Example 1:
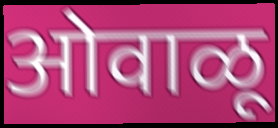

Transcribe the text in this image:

ओवाळू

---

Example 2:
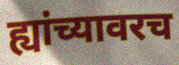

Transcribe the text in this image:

ह्यांच्यावरच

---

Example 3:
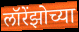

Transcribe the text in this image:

लॉरेंझोच्या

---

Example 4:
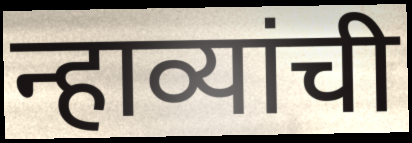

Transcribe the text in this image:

न्हाव्यांची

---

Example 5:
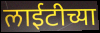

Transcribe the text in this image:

लाईटीच्या